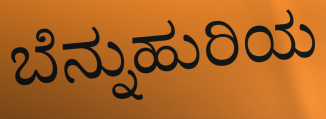
ಬೆನ್ನುಹುರಿಯ